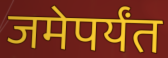
जमेपर्यंत